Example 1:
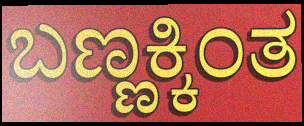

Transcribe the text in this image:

ಬಣ್ಣಕ್ಕಿಂತ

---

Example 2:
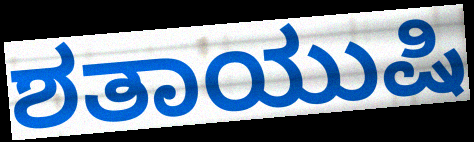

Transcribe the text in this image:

ಶತಾಯುಷಿ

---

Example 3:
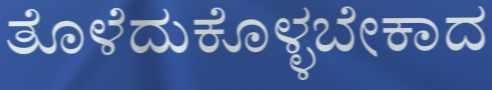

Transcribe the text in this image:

ತೊಳೆದುಕೊಳ್ಳಬೇಕಾದ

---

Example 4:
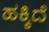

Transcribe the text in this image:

ಹಕ್ಕಿದೆ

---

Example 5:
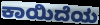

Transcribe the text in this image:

ಕಾಯಿದೆಯ